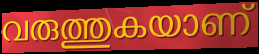
വരുത്തുകയാണ്